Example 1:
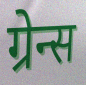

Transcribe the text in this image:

ग्रेन्स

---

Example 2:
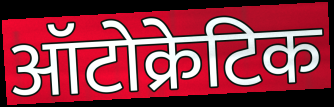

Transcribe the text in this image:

ऑटोक्रेटिक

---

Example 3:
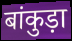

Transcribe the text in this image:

बांकुड़ा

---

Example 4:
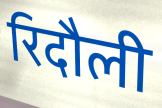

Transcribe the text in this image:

रिदौली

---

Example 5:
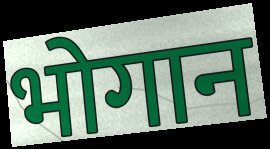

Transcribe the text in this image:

भोगान